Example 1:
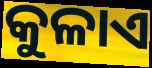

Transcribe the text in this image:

କୁଳାଏ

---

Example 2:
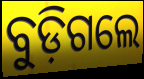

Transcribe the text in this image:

ବୁଡ଼ିଗଲେ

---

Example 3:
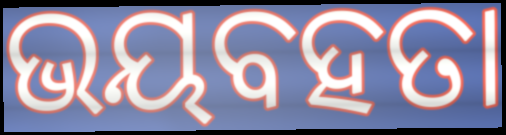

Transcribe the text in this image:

ଭୟବହତା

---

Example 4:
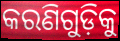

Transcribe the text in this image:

କରଣିଗୁଡ଼ିକୁ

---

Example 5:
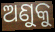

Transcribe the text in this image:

ଅଣୁକୁ